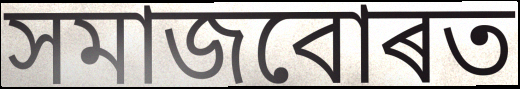
সমাজবোৰত